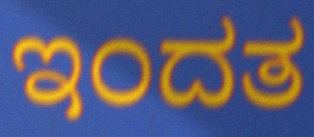
ಇಂದತ